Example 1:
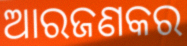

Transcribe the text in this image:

ଆରଜଣକର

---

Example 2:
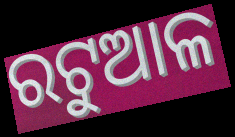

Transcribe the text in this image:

ରଟୁଆଳ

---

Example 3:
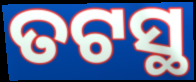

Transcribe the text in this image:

ତଟସ୍ଥ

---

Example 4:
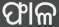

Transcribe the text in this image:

ଫାଳ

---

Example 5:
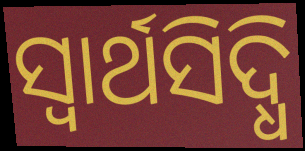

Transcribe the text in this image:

ସ୍ୱାର୍ଥସିଦ୍ଧି